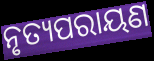
ନୃତ୍ୟପରାୟଣ